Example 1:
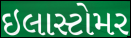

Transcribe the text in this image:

ઇલાસ્ટોમર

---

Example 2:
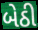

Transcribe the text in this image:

બેઠી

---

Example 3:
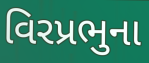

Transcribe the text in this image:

વિરપ્રભુના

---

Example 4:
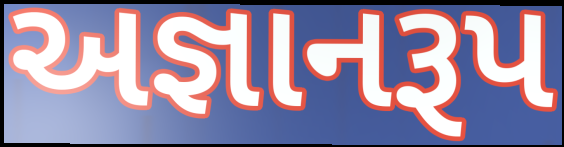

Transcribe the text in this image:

અજ્ઞાનરૂપ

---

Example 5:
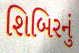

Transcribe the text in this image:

શિબિરનું